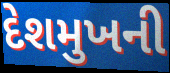
દેશમુખની